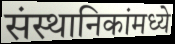
संस्थानिकांमध्ये